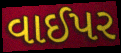
વાઈપર